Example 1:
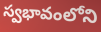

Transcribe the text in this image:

స్వభావంలోని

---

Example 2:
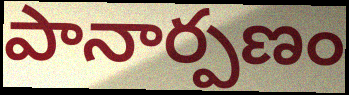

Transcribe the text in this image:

పానార్పణం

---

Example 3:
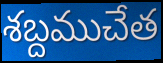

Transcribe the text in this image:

శబ్దముచేత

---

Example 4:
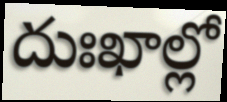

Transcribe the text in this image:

దుఃఖాల్లో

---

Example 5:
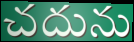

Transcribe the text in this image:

చదును